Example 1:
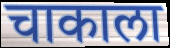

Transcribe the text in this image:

चाकाला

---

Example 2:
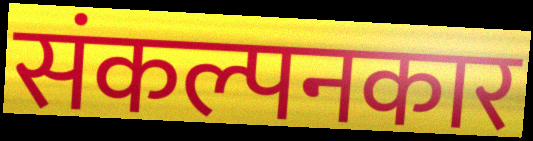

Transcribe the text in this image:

संकल्पनकार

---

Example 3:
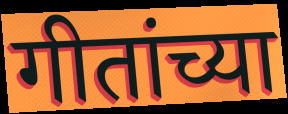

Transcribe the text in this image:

गीतांच्या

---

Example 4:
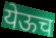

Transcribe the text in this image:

येऊच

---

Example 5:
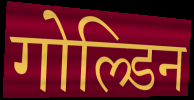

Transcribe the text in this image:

गोल्डिन